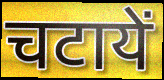
चटायें